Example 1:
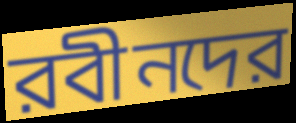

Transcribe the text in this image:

রবীনদের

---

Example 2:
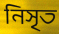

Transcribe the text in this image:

নিসৃত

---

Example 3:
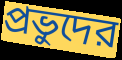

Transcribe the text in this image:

প্রভুদের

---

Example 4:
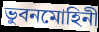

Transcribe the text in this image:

ভুবনমোহিনী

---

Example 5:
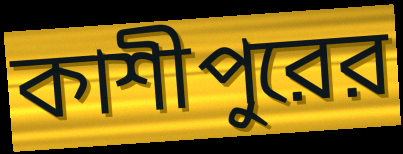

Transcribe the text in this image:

কাশীপুরের